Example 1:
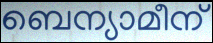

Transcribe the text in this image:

ബെന്യാമീന്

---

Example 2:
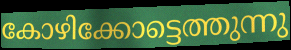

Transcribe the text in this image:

കോഴിക്കോട്ടെത്തുന്നു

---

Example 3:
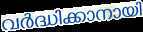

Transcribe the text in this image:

വർദ്ധിക്കാനായി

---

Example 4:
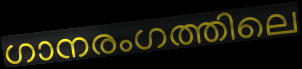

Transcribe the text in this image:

ഗാനരംഗത്തിലെ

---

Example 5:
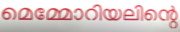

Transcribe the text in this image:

മെമ്മോറിയലിന്റെ